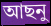
আছনু